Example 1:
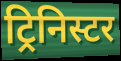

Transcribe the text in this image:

ट्रिनिस्टर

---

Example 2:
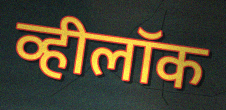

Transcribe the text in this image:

व्हीलॉक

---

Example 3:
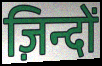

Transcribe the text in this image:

ज़िन्दों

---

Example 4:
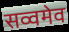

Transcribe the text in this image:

सव्वमेव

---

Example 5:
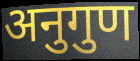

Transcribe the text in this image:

अनुगुण